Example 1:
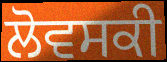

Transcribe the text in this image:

ਲੋਵਸਕੀ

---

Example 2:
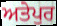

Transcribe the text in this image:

ਅਤੇਪੁਰ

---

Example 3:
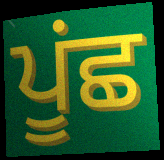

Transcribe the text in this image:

ਪੂਂਛ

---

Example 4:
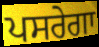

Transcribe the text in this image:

ਪਸਰੇਗਾ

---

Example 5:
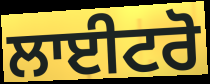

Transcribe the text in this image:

ਲਾਈਟਰੋ